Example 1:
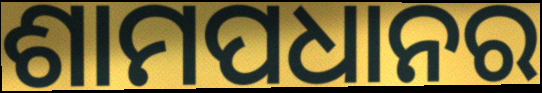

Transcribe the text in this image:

ଶାମପଧାନର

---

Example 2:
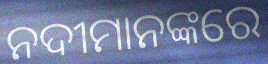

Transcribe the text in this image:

ନଦୀମାନଙ୍କରେ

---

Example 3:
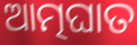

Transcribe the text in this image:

ଆତ୍ମଘାତ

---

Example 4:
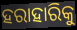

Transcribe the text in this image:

ହରାହାରିକୁ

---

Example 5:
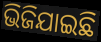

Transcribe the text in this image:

ଭିଜିଯାଇଛି